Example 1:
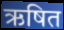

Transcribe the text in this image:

ऋषित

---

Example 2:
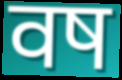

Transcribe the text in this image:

वष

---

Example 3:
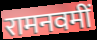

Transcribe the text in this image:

रामनवमीं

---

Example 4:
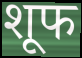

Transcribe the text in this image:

शूफ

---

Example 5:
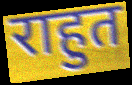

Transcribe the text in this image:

राहुत